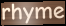
rhyme